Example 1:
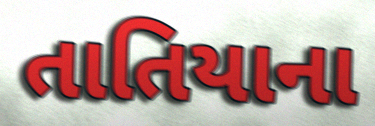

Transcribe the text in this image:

તાતિયાના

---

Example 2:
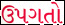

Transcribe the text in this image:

ઉપગતો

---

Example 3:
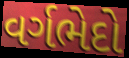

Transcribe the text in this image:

વર્ગભેદો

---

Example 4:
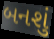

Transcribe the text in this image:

બનશું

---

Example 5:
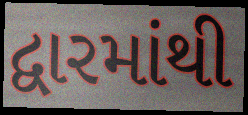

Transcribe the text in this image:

દ્વારમાંથી